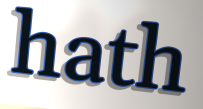
hath